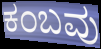
ಕಂಬವು